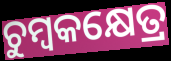
ଚୁମ୍ବକକ୍ଷେତ୍ର